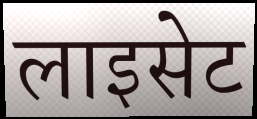
लाइसेट